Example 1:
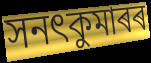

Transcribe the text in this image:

সনৎকুমাৰৰ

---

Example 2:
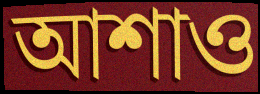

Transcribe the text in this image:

আশাও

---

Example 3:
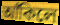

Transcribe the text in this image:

আঁকিলে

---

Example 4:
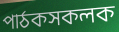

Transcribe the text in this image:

পাঠকসকলক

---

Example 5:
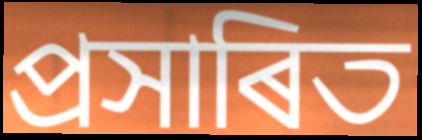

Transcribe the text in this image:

প্ৰসাৰিত